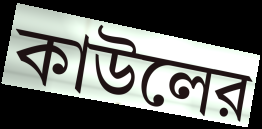
কাউলের